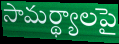
సామర్థ్యాలపై